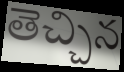
తెచ్చిన